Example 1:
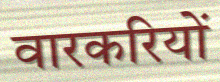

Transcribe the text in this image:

वारकरियों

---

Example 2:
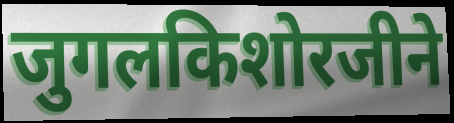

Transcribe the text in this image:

जुगलकिशोरजीने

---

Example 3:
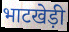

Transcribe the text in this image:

भाटखेड़ी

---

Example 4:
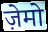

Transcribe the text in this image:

ज़ेमो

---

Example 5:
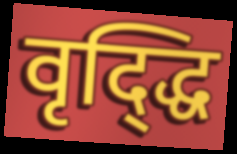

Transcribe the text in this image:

वृद्द्धि